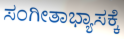
ಸಂಗೀತಾಭ್ಯಾಸಕ್ಕೆ